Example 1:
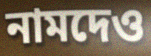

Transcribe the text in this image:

নামদেও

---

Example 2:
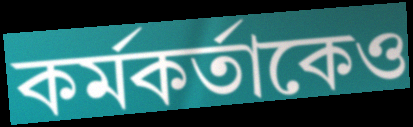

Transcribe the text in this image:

কর্মকর্তাকেও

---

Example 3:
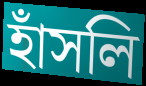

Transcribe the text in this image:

হাঁসলি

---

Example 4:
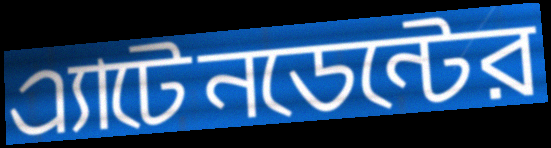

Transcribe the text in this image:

এ্যাটেনডেন্টের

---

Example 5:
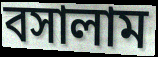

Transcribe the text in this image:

বসালাম